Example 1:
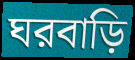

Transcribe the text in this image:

ঘরবাড়ি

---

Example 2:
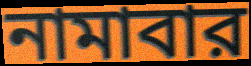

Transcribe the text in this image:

নামাবার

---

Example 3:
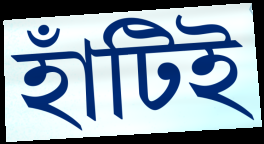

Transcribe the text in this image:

হাঁটিই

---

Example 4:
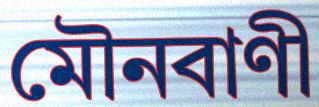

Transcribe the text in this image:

মৌনবাণী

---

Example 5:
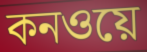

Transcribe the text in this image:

কনওয়ে